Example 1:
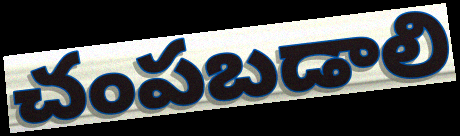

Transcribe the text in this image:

చంపబడాలి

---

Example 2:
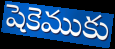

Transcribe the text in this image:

షెకెముకు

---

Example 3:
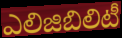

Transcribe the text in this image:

ఎలిజిబిలిటీ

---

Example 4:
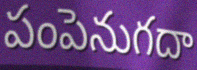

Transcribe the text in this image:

పంపెనుగదా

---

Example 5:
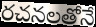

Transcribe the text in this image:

రచనలతోనే